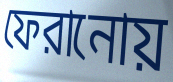
ফেরানোয়